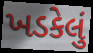
ખડકેલું